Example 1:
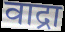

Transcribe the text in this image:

वाद्रा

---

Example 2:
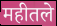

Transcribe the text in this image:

महीतले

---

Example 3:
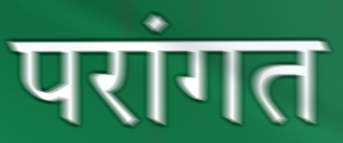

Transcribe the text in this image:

परांगत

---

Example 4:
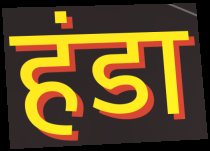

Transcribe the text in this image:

हंडा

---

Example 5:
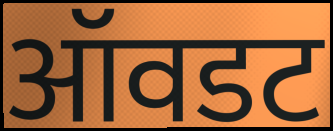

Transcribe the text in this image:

ऑवडट